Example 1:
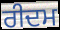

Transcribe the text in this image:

ਰੀਦਮ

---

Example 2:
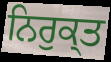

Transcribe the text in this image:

ਨਿਰੁਕ੍ਤ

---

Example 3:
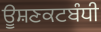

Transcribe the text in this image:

ਊਸ਼ਣਕਟਬੰਧੀ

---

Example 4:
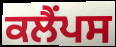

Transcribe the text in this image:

ਕਲੈਂਪਸ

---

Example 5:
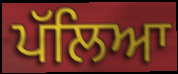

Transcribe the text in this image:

ਪੱਲਿਆ